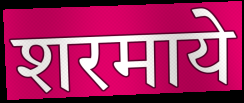
शरमाये